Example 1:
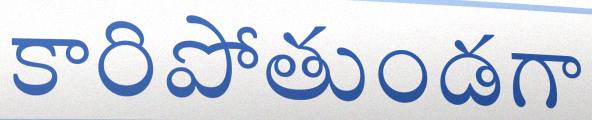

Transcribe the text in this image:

కారిపోతుండగా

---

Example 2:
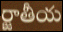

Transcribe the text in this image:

ర్జాతీయ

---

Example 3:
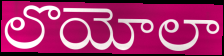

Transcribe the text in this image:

లొయోలా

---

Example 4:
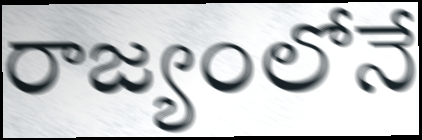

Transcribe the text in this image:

రాజ్యంలోనే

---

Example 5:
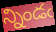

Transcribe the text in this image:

న్నిండఁ